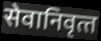
सेवानिवृत्‍त